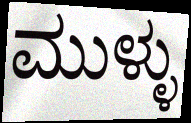
ಮುಳ್ಳು